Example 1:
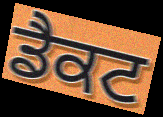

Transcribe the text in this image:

ਡੈਕਟ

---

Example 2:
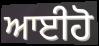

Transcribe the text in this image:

ਆਈਹੋ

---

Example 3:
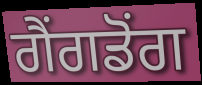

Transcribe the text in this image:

ਗੈਂਗਡੋਂਗ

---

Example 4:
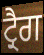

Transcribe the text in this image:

ਟ੍ਰੈਗ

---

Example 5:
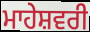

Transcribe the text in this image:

ਮਾਹੇਸ਼ਵਰੀ